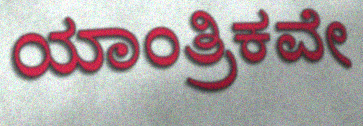
ಯಾಂತ್ರಿಕವೇ